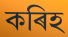
কৰিহ